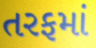
તરફમાં